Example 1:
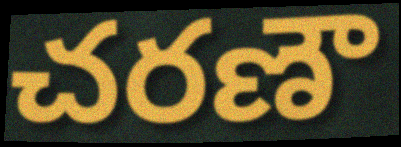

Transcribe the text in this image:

చరణౌ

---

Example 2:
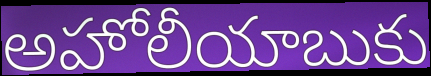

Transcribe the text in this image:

అహోలీయాబుకు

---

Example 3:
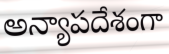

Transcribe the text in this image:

అన్యాపదేశంగా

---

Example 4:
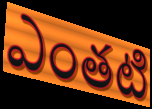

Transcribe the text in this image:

ఎంతటి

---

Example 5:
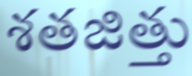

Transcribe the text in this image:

శతజిత్తు